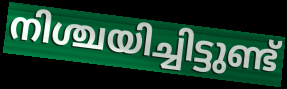
നിശ്ചയിച്ചിട്ടുണ്ട്